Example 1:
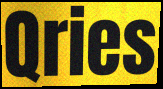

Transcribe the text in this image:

Qries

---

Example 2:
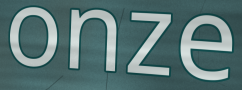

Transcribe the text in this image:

onze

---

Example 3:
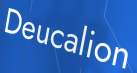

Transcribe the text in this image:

Deucalion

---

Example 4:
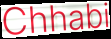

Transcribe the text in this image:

Chhabi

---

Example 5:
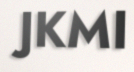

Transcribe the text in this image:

JKMI